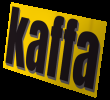
kaffa